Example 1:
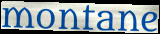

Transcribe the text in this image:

montane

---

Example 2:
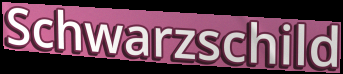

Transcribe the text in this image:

Schwarzschild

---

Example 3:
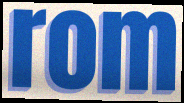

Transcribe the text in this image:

rom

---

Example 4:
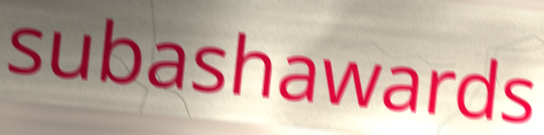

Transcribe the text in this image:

subashawards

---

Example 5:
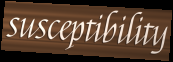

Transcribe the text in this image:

susceptibility